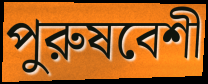
পুরুষবেশী